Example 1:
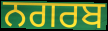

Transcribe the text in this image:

ਨਗਰਬ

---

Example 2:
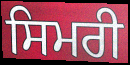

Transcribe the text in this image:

ਸਿਮਰੀ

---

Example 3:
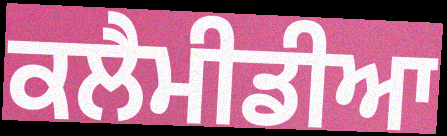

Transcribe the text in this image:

ਕਲੈਮੀਡੀਆ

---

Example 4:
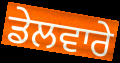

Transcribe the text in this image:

ਡੇਲਵਾਰੇ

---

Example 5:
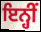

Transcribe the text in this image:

ਇਨ੍ਹੀਂ